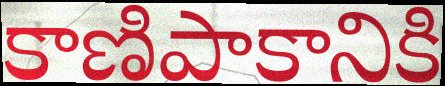
కాణిపాకానికి